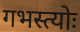
गभस्त्योः